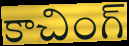
కాచింగ్